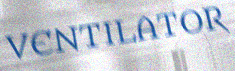
VENTILATOR